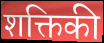
शक्तिकी